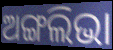
ଅଙ୍ଗଲିଭା